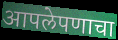
आपलेपणाचा